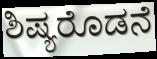
ಶಿಷ್ಯರೊಡನೆ